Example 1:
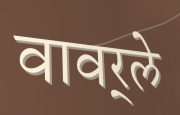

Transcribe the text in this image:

वावर्ले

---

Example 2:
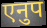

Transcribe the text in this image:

एनुप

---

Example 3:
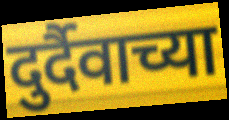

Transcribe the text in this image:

दुर्दैवाच्या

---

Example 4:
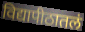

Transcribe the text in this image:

विद्यापीठातलं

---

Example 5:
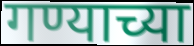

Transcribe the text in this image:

गण्याच्या